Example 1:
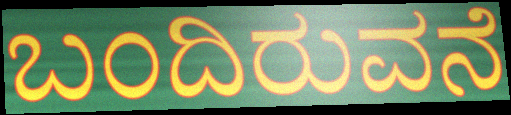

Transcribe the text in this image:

ಬಂದಿರುವನೆ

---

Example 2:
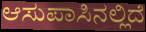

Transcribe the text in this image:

ಆಸುಪಾಸಿನಲ್ಲಿದೆ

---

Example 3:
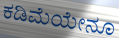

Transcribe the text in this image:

ಕಡಿಮೆಯೇನೂ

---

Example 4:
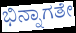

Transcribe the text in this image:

ಭಿನ್ನಾಗತೇ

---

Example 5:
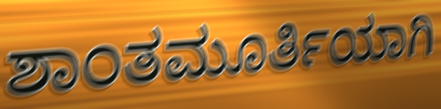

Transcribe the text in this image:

ಶಾಂತಮೂರ್ತಿಯಾಗಿ